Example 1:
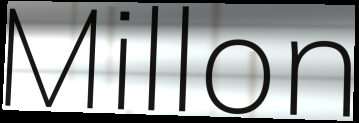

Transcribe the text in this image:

Millon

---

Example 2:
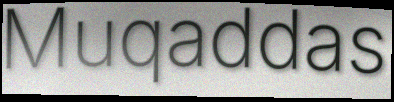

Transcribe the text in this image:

Muqaddas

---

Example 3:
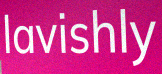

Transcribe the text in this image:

lavishly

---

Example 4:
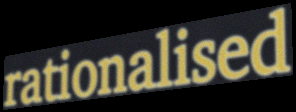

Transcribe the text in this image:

rationalised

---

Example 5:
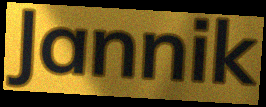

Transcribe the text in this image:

Jannik